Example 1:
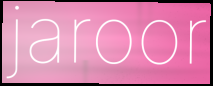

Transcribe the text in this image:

jaroor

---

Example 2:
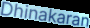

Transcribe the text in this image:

Dhinakaran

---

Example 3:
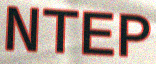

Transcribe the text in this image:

NTEP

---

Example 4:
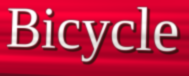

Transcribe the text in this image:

Bicycle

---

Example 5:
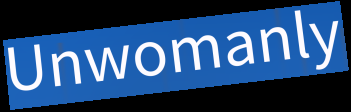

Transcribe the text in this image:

Unwomanly